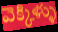
వెక్కిళ్ళు